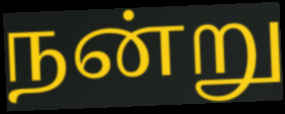
நன்று